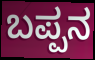
ಬಪ್ಪನ